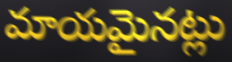
మాయమైనట్లు